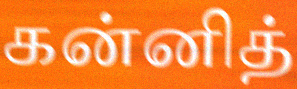
கன்னித்